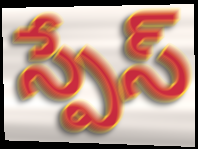
స్పేస్